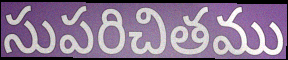
సుపరిచితము